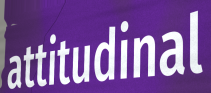
attitudinal